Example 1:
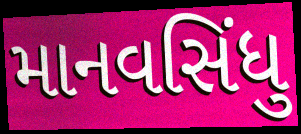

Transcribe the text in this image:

માનવસિંધુ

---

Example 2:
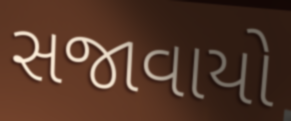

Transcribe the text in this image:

સજાવાયો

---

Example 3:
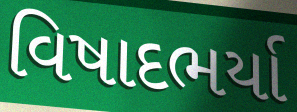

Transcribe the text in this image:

વિષાદભર્યા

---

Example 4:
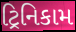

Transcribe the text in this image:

ટ્રિનિકામ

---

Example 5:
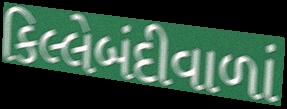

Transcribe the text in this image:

કિલ્લેબંદીવાળાં